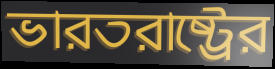
ভারতরাষ্ট্রের